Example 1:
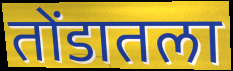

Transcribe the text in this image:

तोंडातला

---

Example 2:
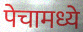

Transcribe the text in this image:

पेचामध्ये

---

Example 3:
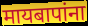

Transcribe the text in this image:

मायबापांना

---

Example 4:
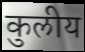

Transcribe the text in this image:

कुलीय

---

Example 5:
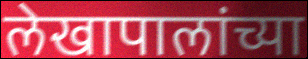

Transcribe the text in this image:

लेखापालांच्या